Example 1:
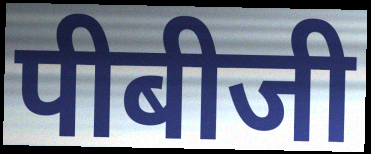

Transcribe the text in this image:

पीबीजी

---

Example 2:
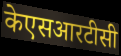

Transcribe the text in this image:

केएसआरटीसी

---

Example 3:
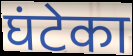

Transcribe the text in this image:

घंटेका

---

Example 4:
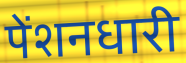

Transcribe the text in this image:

पेंशनधारी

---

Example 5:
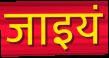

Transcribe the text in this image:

जाइयं